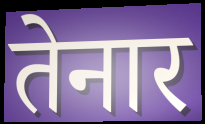
तेनार